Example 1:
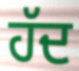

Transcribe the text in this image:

ਹੱਦ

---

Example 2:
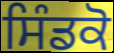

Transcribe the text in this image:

ਸਿੰਡਕੋ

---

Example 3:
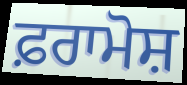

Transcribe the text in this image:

ਫ਼ਰਾਮੋਸ਼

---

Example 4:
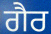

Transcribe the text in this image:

ਗੈਰ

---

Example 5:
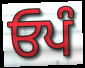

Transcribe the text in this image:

ਓਪੰ